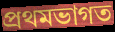
প্ৰথমভাগত